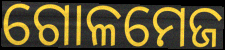
ଗୋଳମେଜ